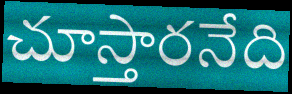
చూస్తారనేది